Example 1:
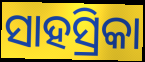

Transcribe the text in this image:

ସାହସ୍ରିକା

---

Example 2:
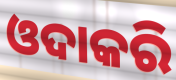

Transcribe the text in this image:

ଓଦାକରି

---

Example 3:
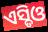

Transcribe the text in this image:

ଏସ୍ଡିଓ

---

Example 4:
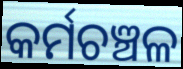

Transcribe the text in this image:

କର୍ମଚଞ୍ଚଳ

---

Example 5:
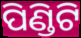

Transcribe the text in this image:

ପିଣ୍ଡିଟି